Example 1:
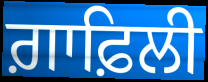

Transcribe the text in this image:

ਗ਼ਾਫ਼ਿਲੀ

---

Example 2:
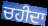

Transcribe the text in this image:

ਚਹੀਦਾ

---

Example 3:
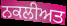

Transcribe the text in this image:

ਨਕਲੀਅਤ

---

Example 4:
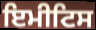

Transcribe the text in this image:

ਇਮੀਟਿਸ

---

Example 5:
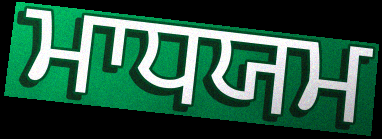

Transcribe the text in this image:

ਮਾਧਯਮ